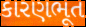
કારણભૂત